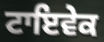
ਟਾਇਵੇਕ